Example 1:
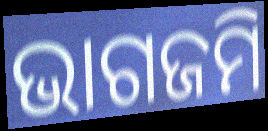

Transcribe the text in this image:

ଭାଗଜମି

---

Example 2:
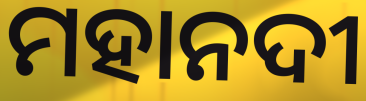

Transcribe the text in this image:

ମହାନଦୀ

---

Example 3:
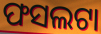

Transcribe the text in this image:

ଫସଲଟା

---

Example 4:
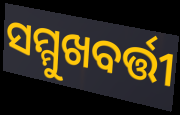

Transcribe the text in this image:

ସମ୍ମୁଖବର୍ତ୍ତୀ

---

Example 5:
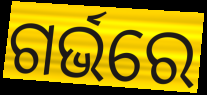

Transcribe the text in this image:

ଗର୍ଭରେ